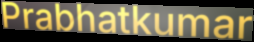
Prabhatkumar